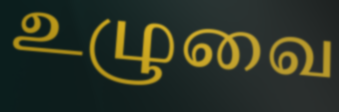
உழுவை